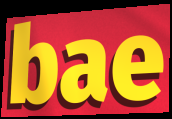
bae